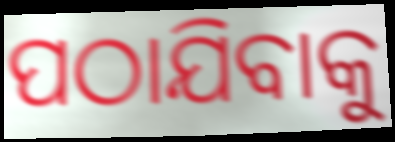
ପଠାଯିବାକୁ